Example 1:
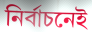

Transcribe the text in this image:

নির্বাচনেই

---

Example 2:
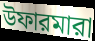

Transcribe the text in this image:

উফারমারা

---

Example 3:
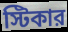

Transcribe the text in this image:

স্টিকার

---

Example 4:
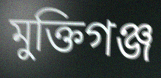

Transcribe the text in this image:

মুক্তিগঞ্জ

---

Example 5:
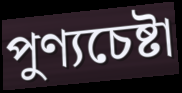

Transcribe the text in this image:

পুণ্যচেষ্টা